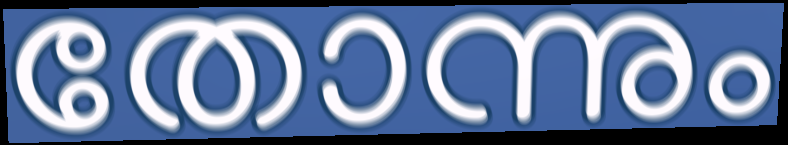
തോന്നും